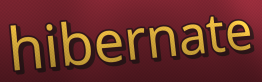
hibernate